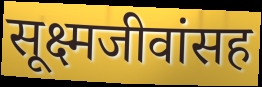
सूक्ष्मजीवांसह